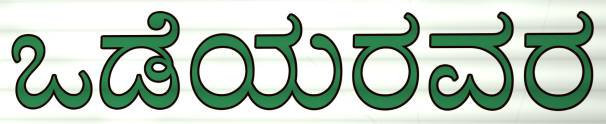
ಒಡೆಯರವರ